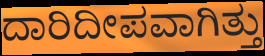
ದಾರಿದೀಪವಾಗಿತ್ತು